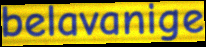
belavanige